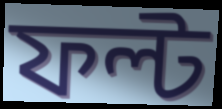
ফল্ট